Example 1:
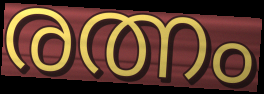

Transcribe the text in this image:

രത്നം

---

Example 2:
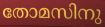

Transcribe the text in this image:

തോമസിനു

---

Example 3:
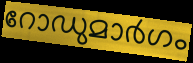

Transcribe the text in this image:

റോഡുമാർഗം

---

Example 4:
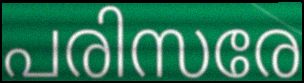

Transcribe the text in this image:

പരിസരേ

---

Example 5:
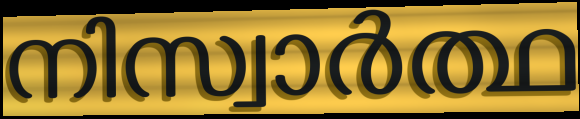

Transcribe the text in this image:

നിസ്വാർത്ഥ